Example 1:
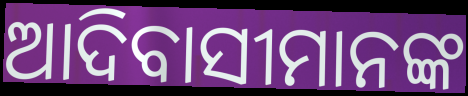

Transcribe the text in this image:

ଆଦିବାସୀମାନଙ୍କ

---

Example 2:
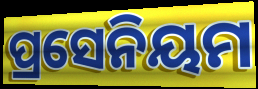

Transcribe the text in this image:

ପ୍ରସେନିୟମ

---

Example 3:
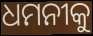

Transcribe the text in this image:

ଧମନୀକୁ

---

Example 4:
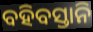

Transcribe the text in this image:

ବହିବସ୍ତାନି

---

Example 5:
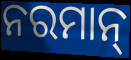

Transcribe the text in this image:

ନରମାନ୍